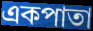
একপাতা